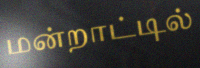
மன்றாட்டில்